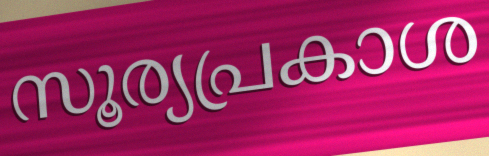
സൂര്യപ്രകാശ